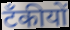
टँकीयों